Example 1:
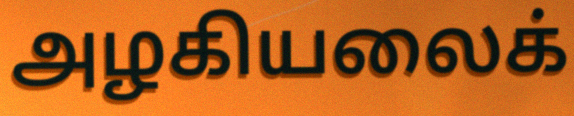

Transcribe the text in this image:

அழகியலைக்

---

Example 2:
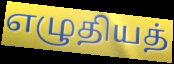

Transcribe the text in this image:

எழுதியத்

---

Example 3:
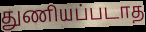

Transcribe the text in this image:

துணியப்படாத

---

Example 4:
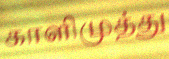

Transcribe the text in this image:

காளிமுத்து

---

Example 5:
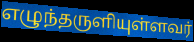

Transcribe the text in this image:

எழுந்தருளியுள்ளவர்